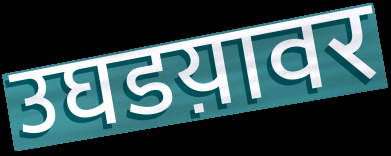
उघडय़ावर